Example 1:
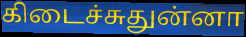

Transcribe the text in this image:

கிடைச்சுதுன்னா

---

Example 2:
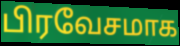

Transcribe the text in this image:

பிரவேசமாக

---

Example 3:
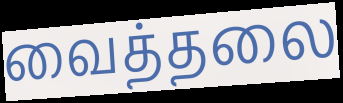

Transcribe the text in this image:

வைத்தலை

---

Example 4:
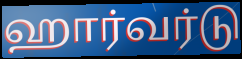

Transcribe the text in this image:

ஹார்வர்டு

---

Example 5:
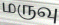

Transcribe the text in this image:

மருவு